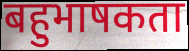
बहुभाषकता